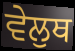
ਵੇਲੁਥ